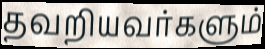
தவறியவர்களும்